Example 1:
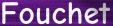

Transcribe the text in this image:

Fouchet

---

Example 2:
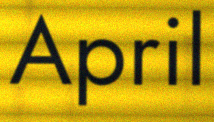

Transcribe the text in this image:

April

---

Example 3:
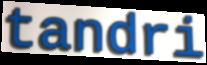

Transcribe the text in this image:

tandri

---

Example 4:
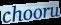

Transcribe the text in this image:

chooru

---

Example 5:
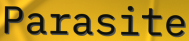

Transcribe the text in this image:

Parasite